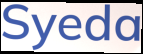
Syeda